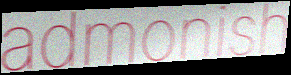
admonish